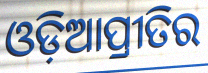
ଓଡ଼ିଆପ୍ରୀତିର